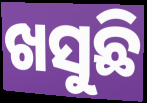
ଖସୁଛି